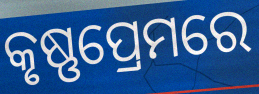
କୃଷ୍ଣପ୍ରେମରେ